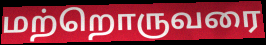
மற்றொருவரை